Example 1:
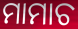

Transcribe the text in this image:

ମାମାଚ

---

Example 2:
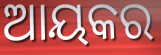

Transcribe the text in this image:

ଆୟକର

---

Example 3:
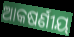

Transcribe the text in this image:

ଆକଷର୍ଣୀୟ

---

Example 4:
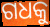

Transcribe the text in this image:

ଗଧକୁ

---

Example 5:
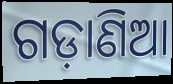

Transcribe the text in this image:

ଗଡ଼ାଣିଆ